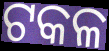
ଟକଳ